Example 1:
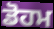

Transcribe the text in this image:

ਡੋਹਮ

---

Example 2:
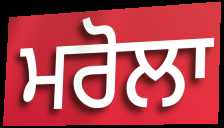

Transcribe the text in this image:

ਮਰੋਲਾ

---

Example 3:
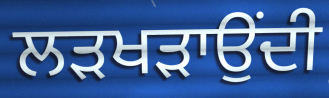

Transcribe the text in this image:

ਲੜਖੜਾਉਂਦੀ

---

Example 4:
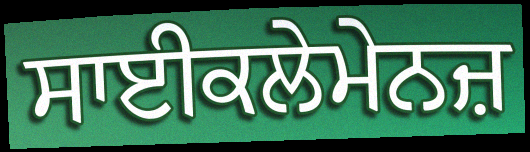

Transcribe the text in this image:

ਸਾਈਕਲੇਮੇਨਜ਼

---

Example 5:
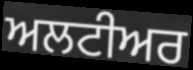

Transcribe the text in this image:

ਅਲਟੀਅਰ